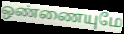
ஒண்ணையுமே